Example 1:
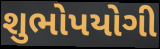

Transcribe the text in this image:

શુભોપયોગી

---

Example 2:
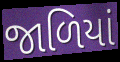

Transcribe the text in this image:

જાળિયાં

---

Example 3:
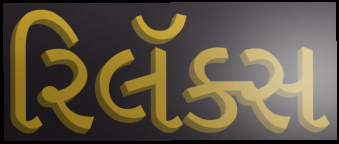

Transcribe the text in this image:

રિલૅક્સ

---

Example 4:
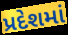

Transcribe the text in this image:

પ્રદેશમાં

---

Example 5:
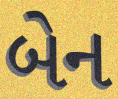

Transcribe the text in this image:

બેન